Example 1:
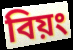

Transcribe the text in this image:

বিয়ং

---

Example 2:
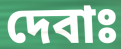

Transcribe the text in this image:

দেবাঃ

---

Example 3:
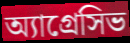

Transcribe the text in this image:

অ্যাগ্রেসিভ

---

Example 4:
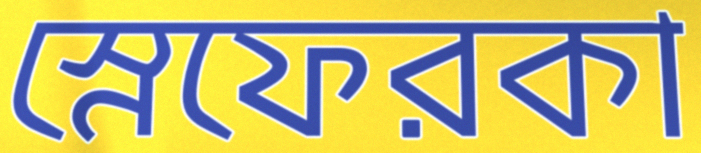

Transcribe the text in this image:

স্নেফেরকা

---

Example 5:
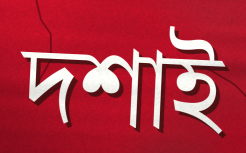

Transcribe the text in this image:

দশাই